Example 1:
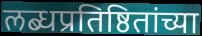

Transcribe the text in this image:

लब्धप्रतिष्ठितांच्या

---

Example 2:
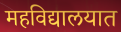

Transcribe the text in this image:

महविद्यालयात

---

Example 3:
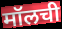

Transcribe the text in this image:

मॉलची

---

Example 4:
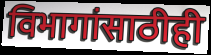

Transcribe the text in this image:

विभागांसाठीही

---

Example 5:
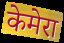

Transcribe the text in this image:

केमेरा